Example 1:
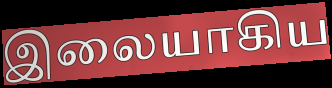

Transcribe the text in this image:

இலையாகிய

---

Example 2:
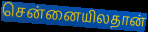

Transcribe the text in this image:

சென்னையிலதான்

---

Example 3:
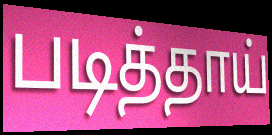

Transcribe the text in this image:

படித்தாய்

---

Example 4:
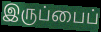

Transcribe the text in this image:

இருப்பைப்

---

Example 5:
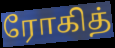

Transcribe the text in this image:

ரோகித்